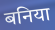
बनिया